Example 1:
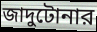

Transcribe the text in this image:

জাদুটোনার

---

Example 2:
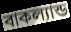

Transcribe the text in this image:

বাকল্যান্ড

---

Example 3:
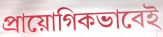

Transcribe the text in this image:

প্রায়োগিকভাবেই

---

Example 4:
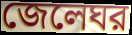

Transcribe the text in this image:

জেলেঘর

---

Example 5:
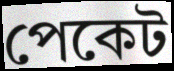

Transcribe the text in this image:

পেকেট